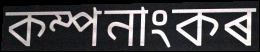
কম্পনাংকৰ